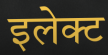
इलेक्ट